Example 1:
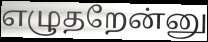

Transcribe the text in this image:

எழுதறேன்னு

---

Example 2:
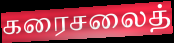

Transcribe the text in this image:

கரைசலைத்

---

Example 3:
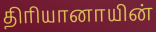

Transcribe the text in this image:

திரியானாயின்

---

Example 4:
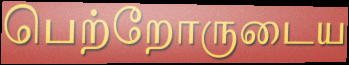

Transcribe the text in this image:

பெற்றோருடைய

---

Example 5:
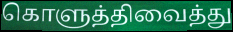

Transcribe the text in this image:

கொளுத்திவைத்து